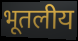
भूतलीय